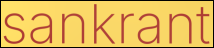
sankrant